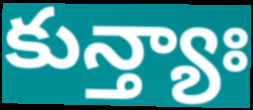
కున్త్యాః